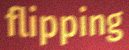
flipping